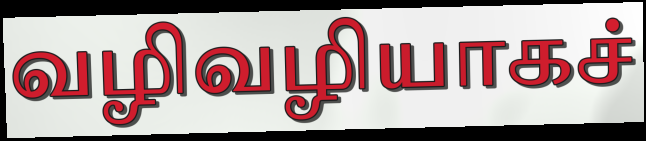
வழிவழியாகச்